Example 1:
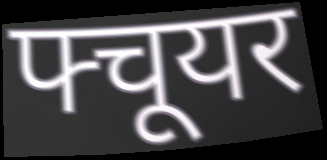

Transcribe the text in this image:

फ्चूयर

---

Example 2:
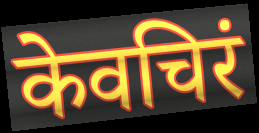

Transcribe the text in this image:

केवचिरं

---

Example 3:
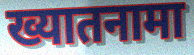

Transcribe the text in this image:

ख्यातनामा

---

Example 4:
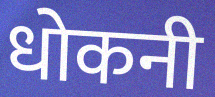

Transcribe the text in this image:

धोकनी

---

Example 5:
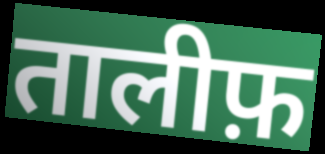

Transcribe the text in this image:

तालीफ़